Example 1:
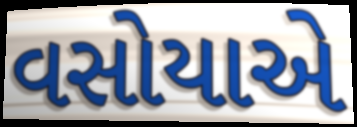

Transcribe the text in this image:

વસોયાએ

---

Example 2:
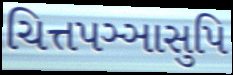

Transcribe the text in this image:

ચિત્તપઞ્ઞાસુપિ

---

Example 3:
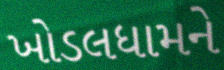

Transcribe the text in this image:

ખોડલધામને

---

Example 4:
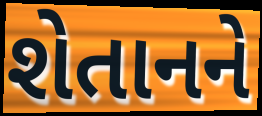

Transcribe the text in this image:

શેતાનને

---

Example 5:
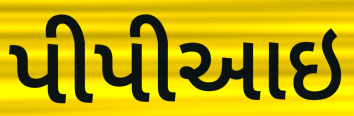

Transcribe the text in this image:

પીપીઆઇ